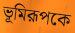
ভূমিরূপকে